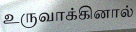
உருவாக்கினால்